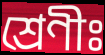
শ্ৰেণীঃ